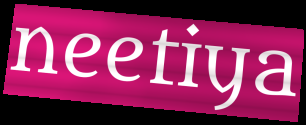
neetiya